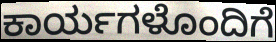
ಕಾರ್ಯಗಳೊಂದಿಗೆ